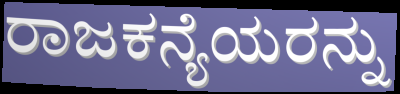
ರಾಜಕನ್ಯೆಯರನ್ನು